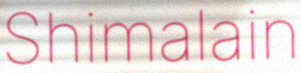
Shimalain